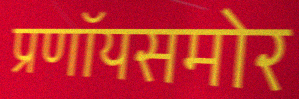
प्रणॉयसमोर